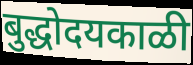
बुद्धोदयकाळी